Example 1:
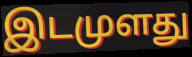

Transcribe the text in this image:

இடமுளது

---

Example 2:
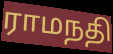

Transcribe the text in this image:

ராமநதி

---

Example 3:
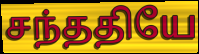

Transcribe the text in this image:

சந்ததியே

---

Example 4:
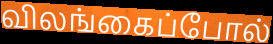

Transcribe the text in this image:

விலங்கைப்போல்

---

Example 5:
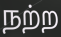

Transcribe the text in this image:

நற்ற